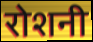
रोशनी